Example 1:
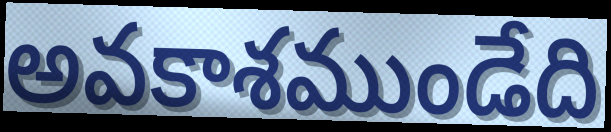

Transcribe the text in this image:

అవకాశముండేది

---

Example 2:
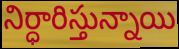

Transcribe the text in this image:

నిర్ధారిస్తున్నాయి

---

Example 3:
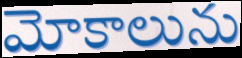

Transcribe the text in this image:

మోకాలును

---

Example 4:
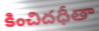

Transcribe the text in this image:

కించిదధీతా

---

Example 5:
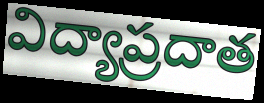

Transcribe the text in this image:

విద్యాప్రదాత